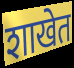
शाखेत